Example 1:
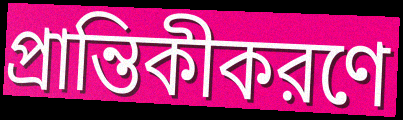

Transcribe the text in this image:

প্রান্তিকীকরণে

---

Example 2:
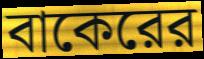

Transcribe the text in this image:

বাকেরের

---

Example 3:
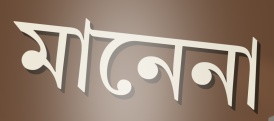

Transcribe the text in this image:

মানেনা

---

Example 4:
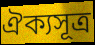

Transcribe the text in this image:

ঐক্যসূত্র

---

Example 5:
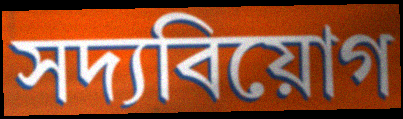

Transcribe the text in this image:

সদ্যবিয়োগ